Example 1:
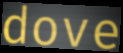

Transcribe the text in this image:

dove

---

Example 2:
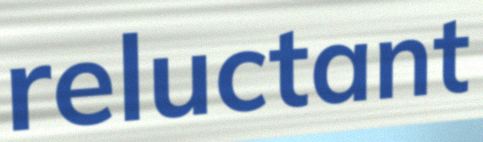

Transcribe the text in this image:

reluctant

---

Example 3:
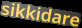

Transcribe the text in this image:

sikkidare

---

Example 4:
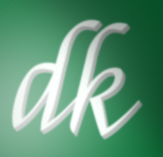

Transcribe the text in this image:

dk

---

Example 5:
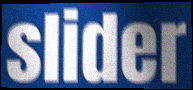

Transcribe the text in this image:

slider